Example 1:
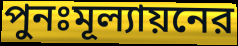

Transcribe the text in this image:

পুনঃমূল্যায়নের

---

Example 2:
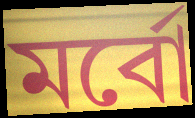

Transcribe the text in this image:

মর্বো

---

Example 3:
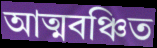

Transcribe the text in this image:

আত্মবঞ্চিত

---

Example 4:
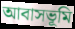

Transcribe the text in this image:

আবাসভূমি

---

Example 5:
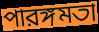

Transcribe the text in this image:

পারঙ্গমতা